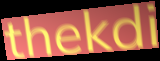
thekdi